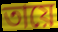
তায়ে